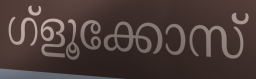
ഗ്ളൂക്കോസ്